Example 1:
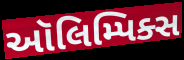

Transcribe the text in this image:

ઑલિમ્પિક્સ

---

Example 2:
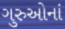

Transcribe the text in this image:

ગુરુઓનાં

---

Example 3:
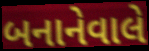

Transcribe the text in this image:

બનાનેવાલે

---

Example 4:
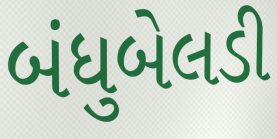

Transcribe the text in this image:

બંધુબેલડી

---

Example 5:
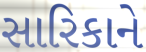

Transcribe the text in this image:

સારિકાને